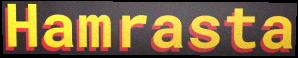
Hamrasta